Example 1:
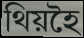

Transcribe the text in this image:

থিয়হৈ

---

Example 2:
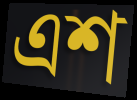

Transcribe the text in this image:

এশ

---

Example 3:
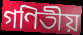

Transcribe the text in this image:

গণিতীয়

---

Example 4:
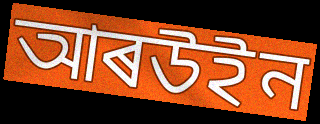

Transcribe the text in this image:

আৰউইন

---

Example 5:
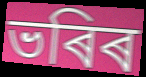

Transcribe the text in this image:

ভৰিৰ